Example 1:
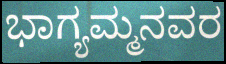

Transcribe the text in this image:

ಭಾಗ್ಯಮ್ಮನವರ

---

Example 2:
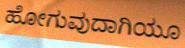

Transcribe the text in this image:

ಹೋಗುವುದಾಗಿಯೂ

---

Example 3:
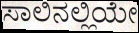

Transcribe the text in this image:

ಸಾಲಿನಲ್ಲಿಯೇ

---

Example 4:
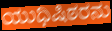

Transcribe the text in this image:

ಯುಧಿಷಿಠರನು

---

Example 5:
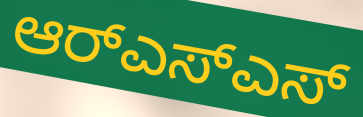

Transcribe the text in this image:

ಆರ್‌ಎಸ್ಎಸ್